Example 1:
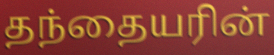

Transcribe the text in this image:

தந்தையரின்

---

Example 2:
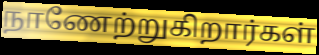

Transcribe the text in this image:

நாணேற்றுகிறார்கள்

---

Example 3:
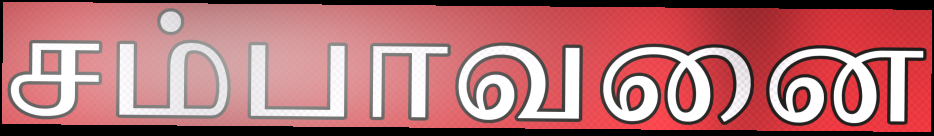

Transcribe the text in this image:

சம்பாவனை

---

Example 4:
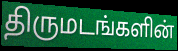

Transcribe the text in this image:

திருமடங்களின்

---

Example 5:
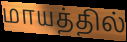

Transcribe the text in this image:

மாயத்தில்